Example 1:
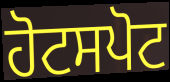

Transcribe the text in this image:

ਹੋਟਸਪੋਟ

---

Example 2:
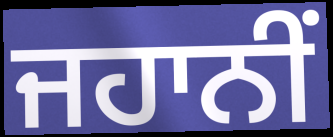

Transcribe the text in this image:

ਜਹਾਨੀਂ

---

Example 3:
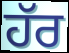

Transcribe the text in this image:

ਹੱਰ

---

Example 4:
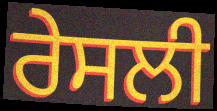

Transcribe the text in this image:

ਰੇਸਲੀ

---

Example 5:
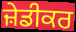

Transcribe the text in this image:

ਜ਼ੇਡੀਕਰ